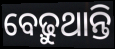
ବେଢ଼ୁଥାନ୍ତି